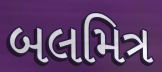
બલમિત્ર